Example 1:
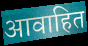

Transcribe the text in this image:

आवाहित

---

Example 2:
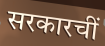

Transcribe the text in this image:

सरकारचीं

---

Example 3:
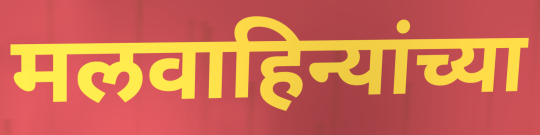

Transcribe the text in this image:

मलवाहिन्यांच्या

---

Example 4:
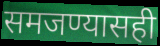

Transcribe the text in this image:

समजण्यासही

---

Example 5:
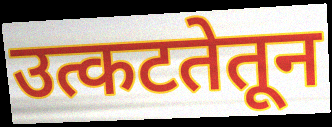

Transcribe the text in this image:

उत्कटतेतून